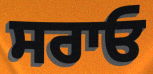
ਸਰਾਓ